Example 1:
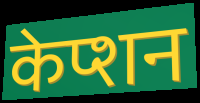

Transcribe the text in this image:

केप्शन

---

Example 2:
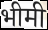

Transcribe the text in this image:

भीमी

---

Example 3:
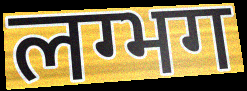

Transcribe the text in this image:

लग्भग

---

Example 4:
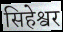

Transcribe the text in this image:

सिहेश्वर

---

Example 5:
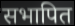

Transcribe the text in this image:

सभापित